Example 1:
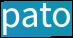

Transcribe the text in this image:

pato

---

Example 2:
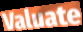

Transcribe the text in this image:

Valuate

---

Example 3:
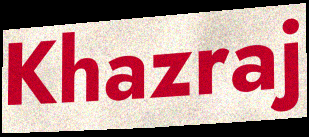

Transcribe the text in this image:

Khazraj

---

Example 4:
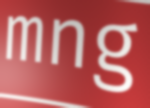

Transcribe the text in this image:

mng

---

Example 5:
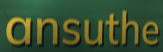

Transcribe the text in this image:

ansuthe